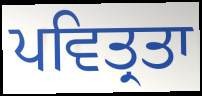
ਪਵਿਤ੍ਰਤਾ